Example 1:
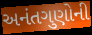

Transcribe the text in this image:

અનંતગુણોની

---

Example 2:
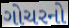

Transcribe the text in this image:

ગોચરનો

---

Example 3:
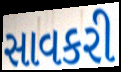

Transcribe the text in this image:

સાવકરી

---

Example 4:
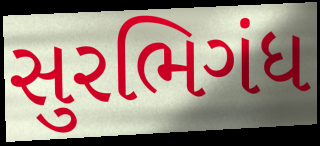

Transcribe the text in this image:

સુરભિગંધ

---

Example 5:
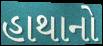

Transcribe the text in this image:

હાથાનો